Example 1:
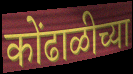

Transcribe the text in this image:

कोंढाळीच्या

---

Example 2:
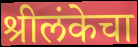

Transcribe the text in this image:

श्रीलंकेचा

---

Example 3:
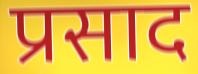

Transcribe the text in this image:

प्रसाद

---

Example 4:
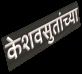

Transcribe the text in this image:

केशवसुतांच्या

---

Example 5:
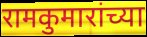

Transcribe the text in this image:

रामकुमारांच्या